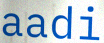
aadi